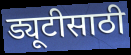
ड्यूटीसाठी